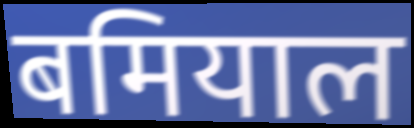
बमियाल